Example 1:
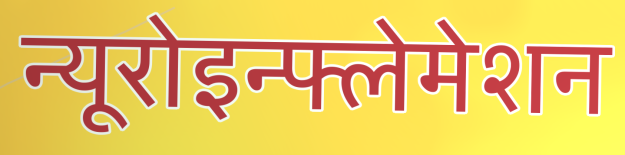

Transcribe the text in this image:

न्यूरोइन्फ्लेमेशन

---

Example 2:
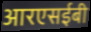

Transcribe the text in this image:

आरएसईबी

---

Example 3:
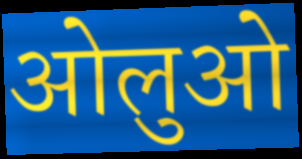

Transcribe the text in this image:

ओलुओ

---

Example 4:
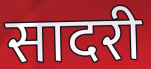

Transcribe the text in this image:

सादरी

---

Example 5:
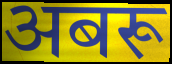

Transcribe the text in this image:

अबरू